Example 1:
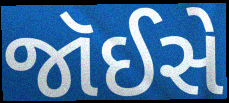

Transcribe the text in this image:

જૉઈસે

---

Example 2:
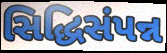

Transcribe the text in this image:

સિદ્ધિસંપન્ન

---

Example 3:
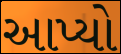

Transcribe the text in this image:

આપ્યો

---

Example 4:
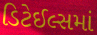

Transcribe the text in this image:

ડિટેઈલ્સમાં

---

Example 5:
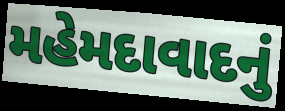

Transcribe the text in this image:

મહેમદાવાદનું